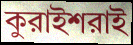
কুরাইশরাই